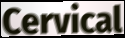
Cervical